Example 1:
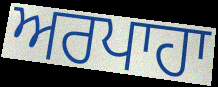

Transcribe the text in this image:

ਅਰਪਾਹਾ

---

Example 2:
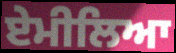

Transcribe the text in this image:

ਏਮੀਲਿਆ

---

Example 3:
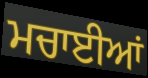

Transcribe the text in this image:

ਮਚਾਈਆਂ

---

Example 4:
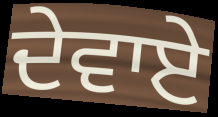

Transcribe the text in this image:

ਦੇਵਾਏ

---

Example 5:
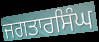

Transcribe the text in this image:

ਜਗਤਾਰਸਿੰਘ